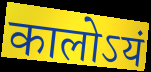
कालोऽयं